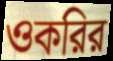
ওকরির